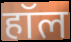
हॉल